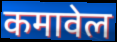
कमावेल